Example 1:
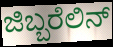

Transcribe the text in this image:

ಜಿಬ್ಬರೆಲಿನ್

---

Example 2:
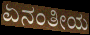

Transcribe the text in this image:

ಏನಂತೀಯ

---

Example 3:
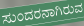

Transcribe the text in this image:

ಸುಂದರನಾಗಿರುವ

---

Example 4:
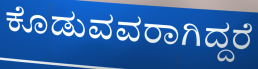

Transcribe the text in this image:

ಕೊಡುವವರಾಗಿದ್ದರೆ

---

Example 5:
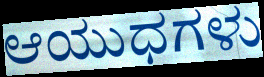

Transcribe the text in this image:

ಆಯುಧಗಳು